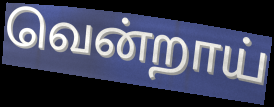
வென்றாய்